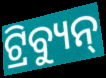
ଟ୍ରିବ୍ୟୁନ୍